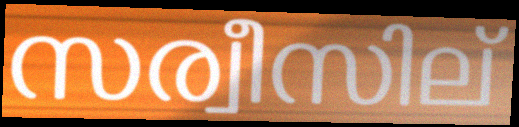
സര്വീസില്